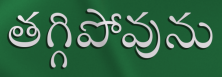
తగ్గిపోవును